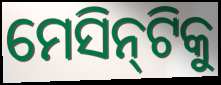
ମେସିନ୍‍ଟିକୁ